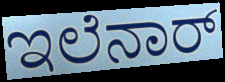
ಇಲೆನಾರ್